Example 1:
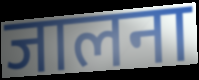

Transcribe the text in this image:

जालना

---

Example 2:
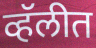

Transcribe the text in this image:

व्हॅलीत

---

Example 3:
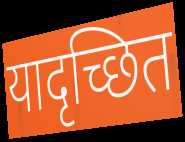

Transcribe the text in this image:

यादृच्छित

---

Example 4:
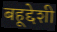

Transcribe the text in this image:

बहूद्देशी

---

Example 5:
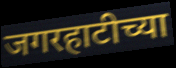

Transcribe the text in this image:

जगरहाटीच्या